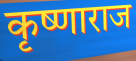
कृष्णाराज